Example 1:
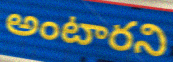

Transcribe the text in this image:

అంటారని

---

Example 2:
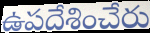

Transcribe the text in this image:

ఉపదేశించేరు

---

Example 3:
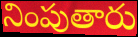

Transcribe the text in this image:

నింపుతారు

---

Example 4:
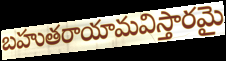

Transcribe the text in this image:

బహుతరాయామవిస్తారమై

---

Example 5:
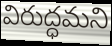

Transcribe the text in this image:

విరుద్ధమని